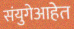
संयुगेआहेत